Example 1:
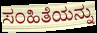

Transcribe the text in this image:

ಸಂಹಿತೆಯನ್ನು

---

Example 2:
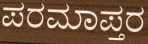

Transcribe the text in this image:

ಪರಮಾಪ್ತರ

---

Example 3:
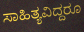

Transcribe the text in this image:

ಸಾಹಿತ್ಯವಿದ್ದರೂ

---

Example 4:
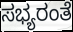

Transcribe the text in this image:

ಸಭ್ಯರಂತೆ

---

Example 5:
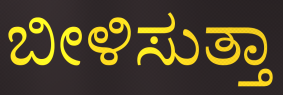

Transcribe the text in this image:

ಬೀಳಿಸುತ್ತಾ